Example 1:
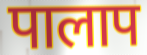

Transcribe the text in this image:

पालाप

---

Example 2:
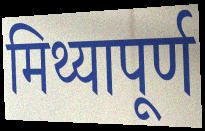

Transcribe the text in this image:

मिथ्यापूर्ण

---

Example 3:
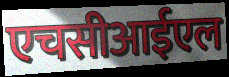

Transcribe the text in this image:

एचसीआईएल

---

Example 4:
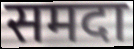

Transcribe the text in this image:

समदा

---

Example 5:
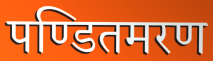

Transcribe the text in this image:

पण्डितमरण